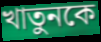
খাতুনকে